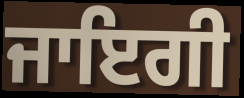
ਜਾਇਗੀ